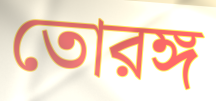
তোরঙ্গ